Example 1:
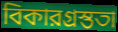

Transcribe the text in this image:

বিকারগ্রস্ততা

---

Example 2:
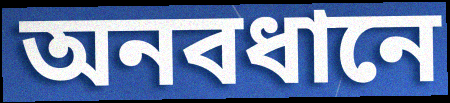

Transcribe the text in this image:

অনবধানে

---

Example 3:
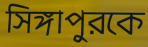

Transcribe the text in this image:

সিঙ্গাপুরকে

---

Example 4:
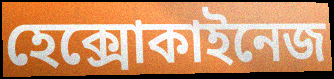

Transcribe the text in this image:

হেক্সোকাইনেজ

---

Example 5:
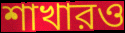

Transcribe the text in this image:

শাখারও